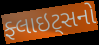
ફ્લાઇટ્સનો